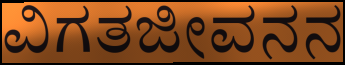
ವಿಗತಜೀವನನ